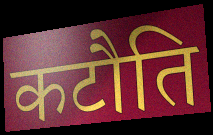
कटौति